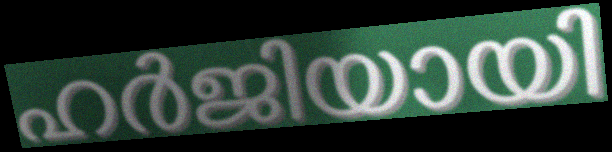
ഹർജിയായി